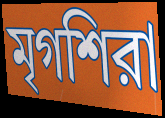
মৃগশিরা